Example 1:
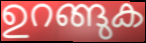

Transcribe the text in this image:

ഉറങ്ങുക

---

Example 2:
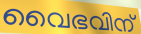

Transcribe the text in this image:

വൈഭവിന്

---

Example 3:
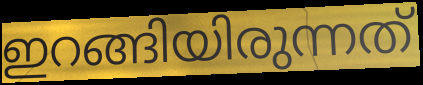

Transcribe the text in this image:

ഇറങ്ങിയിരുന്നത്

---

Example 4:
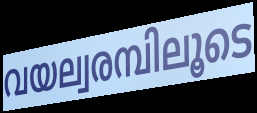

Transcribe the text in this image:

വയല്വരമ്പിലൂടെ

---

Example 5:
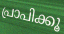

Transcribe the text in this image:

പ്രാപിക്കൂ